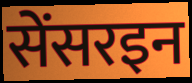
सेंसरइन